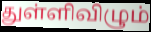
துள்ளிவிழும்